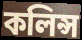
কলিন্স